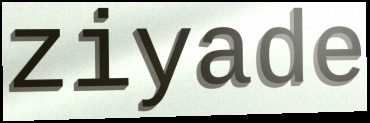
ziyade